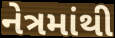
નેત્રમાંથી